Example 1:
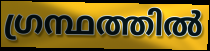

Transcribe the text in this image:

ഗ്രന്ഥത്തിൽ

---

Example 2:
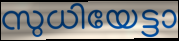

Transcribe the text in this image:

സുധിയേട്ടാ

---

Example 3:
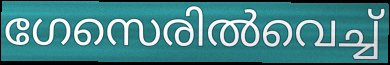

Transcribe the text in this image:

ഗേസെരിൽവെച്ച്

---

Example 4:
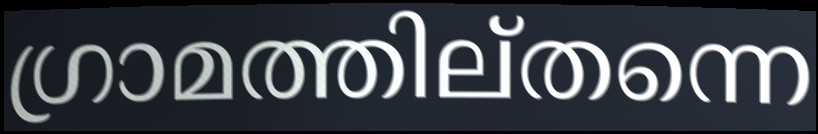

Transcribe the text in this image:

ഗ്രാമത്തില്തന്നെ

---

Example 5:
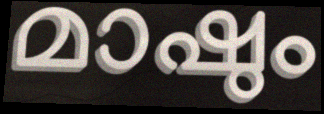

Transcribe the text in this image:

മാഷും